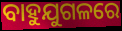
ବାହୁଯୁଗଳରେ